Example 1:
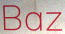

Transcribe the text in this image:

Baz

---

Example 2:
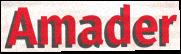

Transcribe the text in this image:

Amader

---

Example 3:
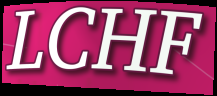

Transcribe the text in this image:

LCHF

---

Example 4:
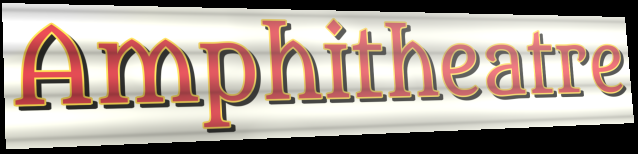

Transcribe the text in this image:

Amphitheatre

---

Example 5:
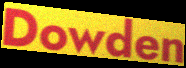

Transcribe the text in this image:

Dowden